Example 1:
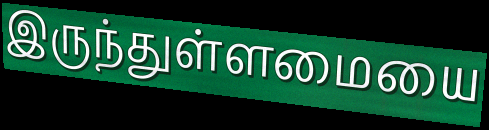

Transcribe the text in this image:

இருந்துள்ளமையை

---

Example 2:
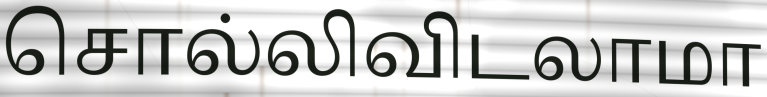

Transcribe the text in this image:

சொல்லிவிடலாமா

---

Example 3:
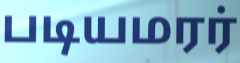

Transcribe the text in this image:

படியமரர்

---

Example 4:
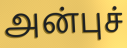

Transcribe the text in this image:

அன்புச்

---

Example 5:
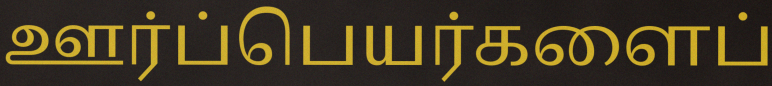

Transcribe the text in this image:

ஊர்ப்பெயர்களைப்